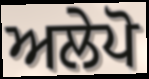
ਅਲੇਪੋ